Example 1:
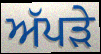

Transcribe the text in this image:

ਅੱਪੜੇ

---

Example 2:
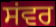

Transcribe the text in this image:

ਸਂਵਰ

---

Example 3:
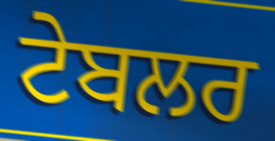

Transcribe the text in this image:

ਟੇਬਲਰ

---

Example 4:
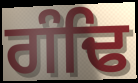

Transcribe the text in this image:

ਗੰਢਿ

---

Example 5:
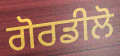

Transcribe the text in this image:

ਗੋਰਡੀਲੋ